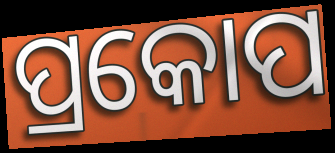
ପ୍ରକୋପ